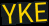
YKE